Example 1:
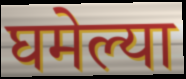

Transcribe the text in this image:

घमेल्या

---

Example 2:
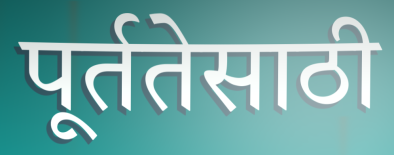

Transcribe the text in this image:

पूर्ततेसाठी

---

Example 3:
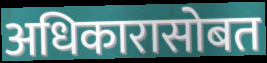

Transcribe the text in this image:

अधिकारासोबत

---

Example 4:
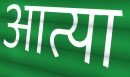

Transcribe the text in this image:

आत्या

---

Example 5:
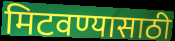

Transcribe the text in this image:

मिटवण्यासाठी